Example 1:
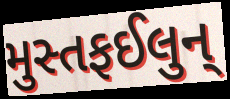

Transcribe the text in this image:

મુસ્તફઈલુન્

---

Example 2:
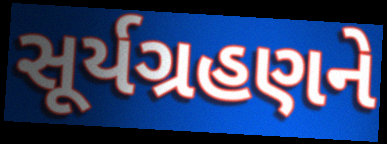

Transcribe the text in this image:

સૂર્યગ્રહણને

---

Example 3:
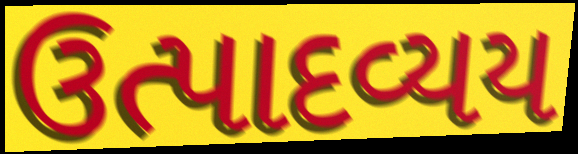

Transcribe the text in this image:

ઉત્પાદવ્યય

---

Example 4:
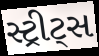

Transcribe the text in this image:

સ્ટ્રીટ્સ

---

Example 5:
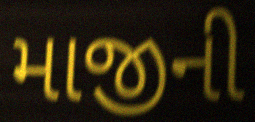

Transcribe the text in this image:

માજીની